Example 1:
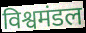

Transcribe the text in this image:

विश्वमंडल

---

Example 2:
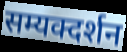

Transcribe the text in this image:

सम्यक्दर्शन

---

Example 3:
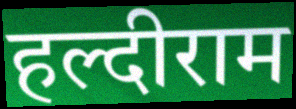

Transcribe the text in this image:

हल्दीराम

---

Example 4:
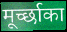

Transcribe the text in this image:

मूर्च्छाका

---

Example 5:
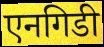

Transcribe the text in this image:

एनगिडी